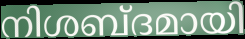
നിശബ്ദമായി